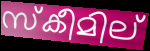
സ്കീമില്